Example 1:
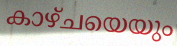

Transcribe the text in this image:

കാഴ്ചയെയും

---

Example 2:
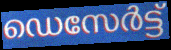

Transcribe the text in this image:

ഡെസേർട്ട്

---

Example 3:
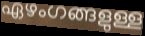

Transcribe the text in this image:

ഏഴംഗങ്ങളുള്ള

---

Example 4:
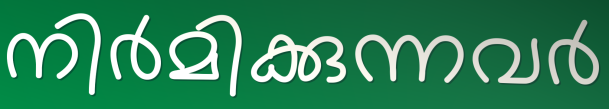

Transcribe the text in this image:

നിർമിക്കുന്നവർ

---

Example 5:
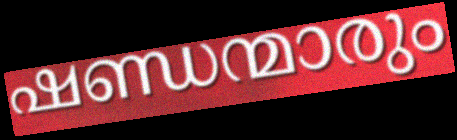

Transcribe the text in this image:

ഷണ്ഡന്മാരും